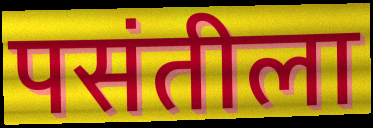
पसंतीला